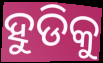
ହୁଡିକୁ